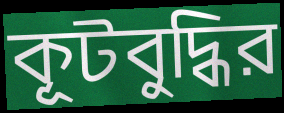
কূটবুদ্ধির